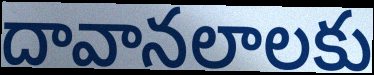
దావానలాలకు